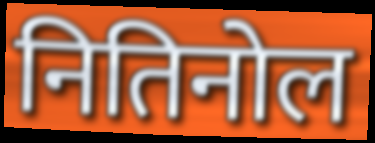
नितिनोल